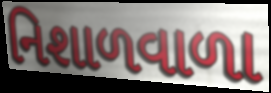
નિશાળવાળા